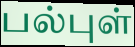
பல்புள்